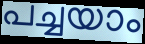
പച്ചയാം